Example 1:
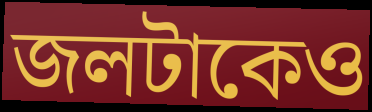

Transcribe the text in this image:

জলটাকেও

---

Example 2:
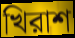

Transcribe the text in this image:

খিরাশ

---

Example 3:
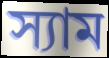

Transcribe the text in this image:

স্যাম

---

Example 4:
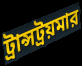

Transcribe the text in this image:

ট্রান্সট্রয়মার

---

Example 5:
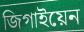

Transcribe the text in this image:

জিগাইয়েন